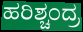
ಹರಿಶ್ಚಂದ್ರ